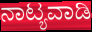
ನಾಟ್ಯವಾಡಿ